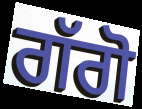
ਗੱਗੋ